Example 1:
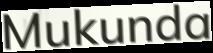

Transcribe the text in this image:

Mukunda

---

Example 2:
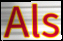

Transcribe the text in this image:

Als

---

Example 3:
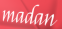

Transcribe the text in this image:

madan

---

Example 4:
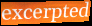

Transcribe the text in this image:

excerpted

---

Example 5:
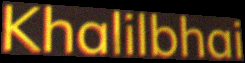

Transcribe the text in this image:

Khalilbhai